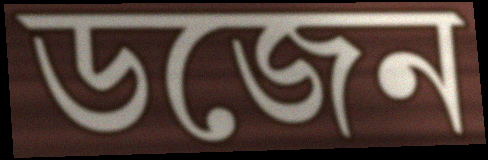
ডজেন